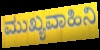
ಮುಖ್ಯವಾಹಿನಿ